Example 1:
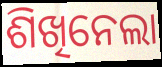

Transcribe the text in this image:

ଶିଖିନେଲା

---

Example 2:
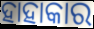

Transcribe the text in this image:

ହାହାକାର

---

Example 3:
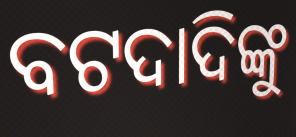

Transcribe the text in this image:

ବଟଦାଦିଙ୍କୁ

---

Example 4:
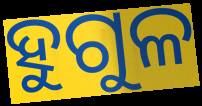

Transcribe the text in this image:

ହୁଗୁଳ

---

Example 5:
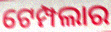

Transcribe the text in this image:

ଟେମ୍ପଲାର